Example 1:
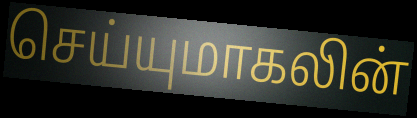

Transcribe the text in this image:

செய்யுமாகலின்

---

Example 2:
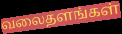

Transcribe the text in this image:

வலைதளங்கள்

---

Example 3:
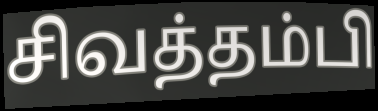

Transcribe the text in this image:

சிவத்தம்பி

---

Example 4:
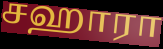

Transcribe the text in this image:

சஹாரா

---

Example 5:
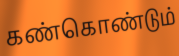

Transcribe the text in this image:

கண்கொண்டும்